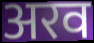
अरव